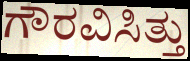
ಗೌರವಿಸಿತ್ತು